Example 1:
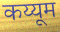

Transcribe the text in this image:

कय्यूम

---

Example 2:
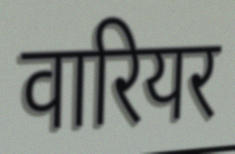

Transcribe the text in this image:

वारियर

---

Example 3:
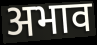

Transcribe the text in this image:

अभाव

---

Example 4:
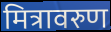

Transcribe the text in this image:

मित्रावरुण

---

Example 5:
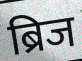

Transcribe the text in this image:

ब्रिज